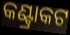
କଣ୍ଟ୍ରାକଟ